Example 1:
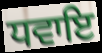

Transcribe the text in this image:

ਧਵਾਇ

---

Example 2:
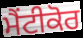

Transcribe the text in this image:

ਮੈਂਟੀਕੋਰ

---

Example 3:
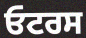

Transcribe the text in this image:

ਓਟਰਸ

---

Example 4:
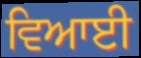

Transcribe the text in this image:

ਵਿਆਈ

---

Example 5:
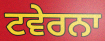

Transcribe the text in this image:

ਟਵੇਰਨਾ